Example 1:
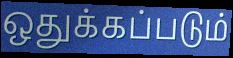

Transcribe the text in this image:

ஒதுக்கப்படும்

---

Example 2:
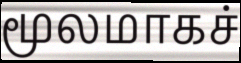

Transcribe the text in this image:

மூலமாகச்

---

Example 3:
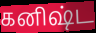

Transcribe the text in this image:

கனிஷ்ட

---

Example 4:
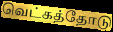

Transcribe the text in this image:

வெட்கத்தோடு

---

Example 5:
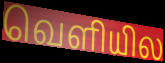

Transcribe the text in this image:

வெளியில